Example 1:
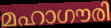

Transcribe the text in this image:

മഹാഗൗരി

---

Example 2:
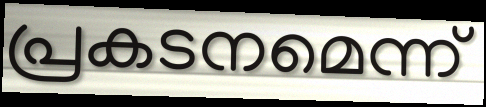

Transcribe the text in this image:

പ്രകടനമെന്ന്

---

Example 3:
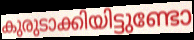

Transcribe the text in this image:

കുരുടാക്കിയിട്ടുണ്ടോ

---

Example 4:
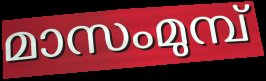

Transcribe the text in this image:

മാസംമുമ്പ്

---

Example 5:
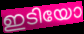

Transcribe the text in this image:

ഇടിയോ